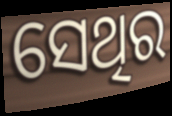
ସେଥିର